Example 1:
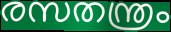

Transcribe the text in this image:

രസതന്ത്രം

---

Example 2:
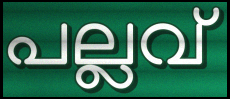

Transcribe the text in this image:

പല്ലവ്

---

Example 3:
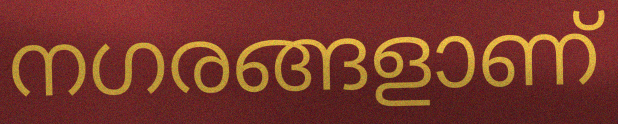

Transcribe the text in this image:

നഗരങ്ങളാണ്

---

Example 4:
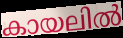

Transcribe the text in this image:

കായലിൽ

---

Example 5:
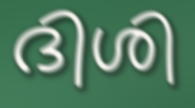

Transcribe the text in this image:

ദിശി